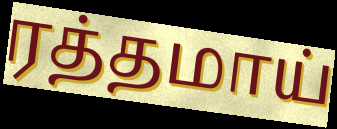
ரத்தமாய்